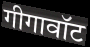
गीगावॉट